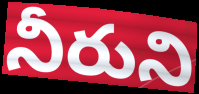
నీరుని